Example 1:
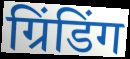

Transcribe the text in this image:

ग्रिंडिंग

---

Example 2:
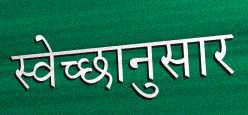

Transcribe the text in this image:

स्वेच्छानुसार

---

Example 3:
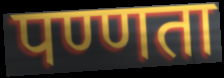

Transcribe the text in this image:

पण्णता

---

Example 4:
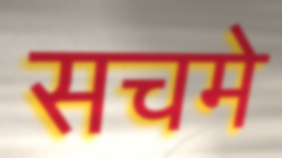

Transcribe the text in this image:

सचमे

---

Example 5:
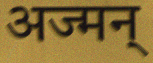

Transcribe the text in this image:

अज्मन्